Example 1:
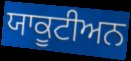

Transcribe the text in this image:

ਯਾਕੂਟੀਅਨ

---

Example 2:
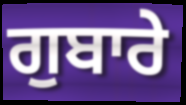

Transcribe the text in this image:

ਗੁਬਾਰੇ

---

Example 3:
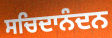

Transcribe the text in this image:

ਸਚਿਦਾਨੰਦਨ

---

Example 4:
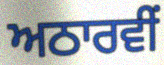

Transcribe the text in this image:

ਅਠਾਰਵੀਂ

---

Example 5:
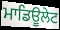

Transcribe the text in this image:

ਮਾਡਿਊਲੇਟ